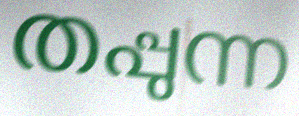
തപ്പുന്ന